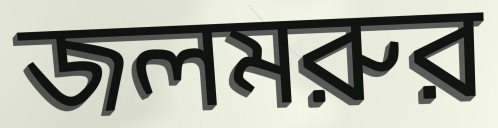
জলমরুর